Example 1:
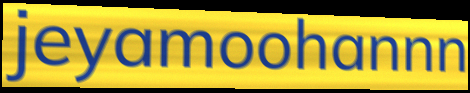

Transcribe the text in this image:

jeyamoohannn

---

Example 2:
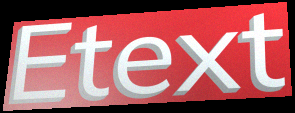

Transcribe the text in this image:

Etext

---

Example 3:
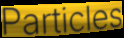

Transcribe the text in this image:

Particles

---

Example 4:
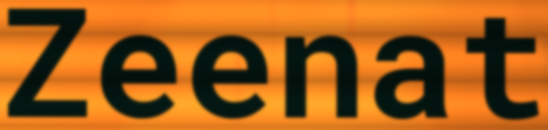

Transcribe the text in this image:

Zeenat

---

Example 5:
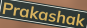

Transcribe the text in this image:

Prakashak